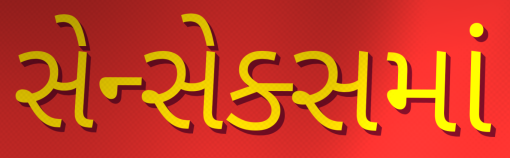
સેન્સેક્સમાં